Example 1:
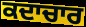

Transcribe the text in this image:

ਕਦਾਚਾਰ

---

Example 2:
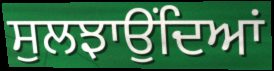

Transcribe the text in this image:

ਸੁਲਝਾਉਂਦਿਆਂ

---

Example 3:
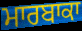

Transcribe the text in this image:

ਮਾਰਬਾਕਾ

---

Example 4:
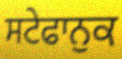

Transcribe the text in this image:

ਸਟੇਫਾਨੁਕ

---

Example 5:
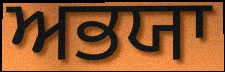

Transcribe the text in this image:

ਅਭਯਾ